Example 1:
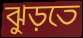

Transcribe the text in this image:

ঝুড়তে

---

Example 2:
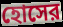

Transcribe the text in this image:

হোসের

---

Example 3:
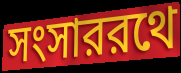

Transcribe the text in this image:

সংসাররথে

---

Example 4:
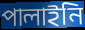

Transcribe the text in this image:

পালাইনি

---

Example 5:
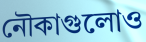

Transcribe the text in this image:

নৌকাগুলোও